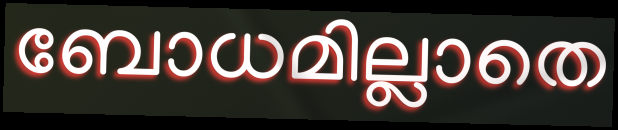
ബോധമില്ലാതെ